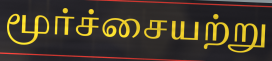
மூர்ச்சையற்று